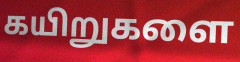
கயிறுகளை